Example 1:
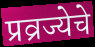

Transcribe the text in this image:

प्रव्रज्येचे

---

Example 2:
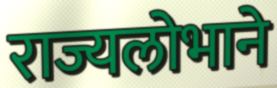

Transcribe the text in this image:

राज्यलोभाने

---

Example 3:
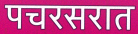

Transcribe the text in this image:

पचरसरात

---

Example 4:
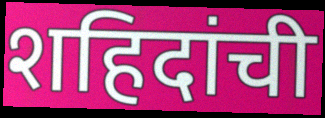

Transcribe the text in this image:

शहिदांची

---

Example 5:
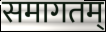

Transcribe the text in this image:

समागतम्